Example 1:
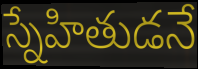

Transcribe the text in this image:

స్నేహితుడనే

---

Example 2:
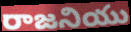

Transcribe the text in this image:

రాజనియు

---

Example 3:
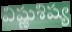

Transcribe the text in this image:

విష్ణుశిష్య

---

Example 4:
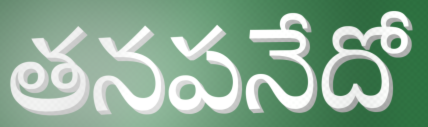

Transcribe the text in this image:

తనపనేదో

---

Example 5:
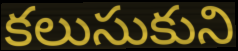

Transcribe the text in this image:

కలుసుకుని